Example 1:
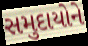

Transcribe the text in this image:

સમુદાયોને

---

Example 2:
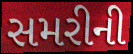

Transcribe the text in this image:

સમરીની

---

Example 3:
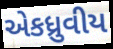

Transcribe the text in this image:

એકધ્રુવીય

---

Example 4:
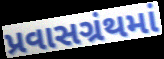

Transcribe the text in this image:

પ્રવાસગ્રંથમાં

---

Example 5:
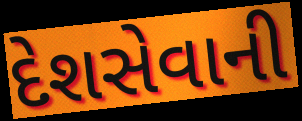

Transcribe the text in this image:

દેશસેવાની